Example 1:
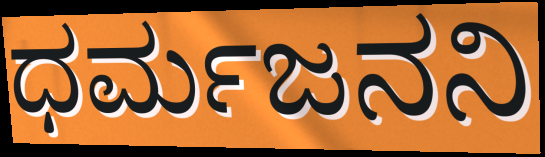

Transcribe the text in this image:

ಧರ್ಮಜನನಿ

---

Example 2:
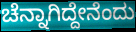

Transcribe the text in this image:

ಚೆನ್ನಾಗಿದ್ದೇನೆಂದು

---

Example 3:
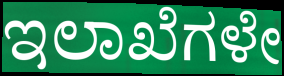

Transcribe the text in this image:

ಇಲಾಖೆಗಳೇ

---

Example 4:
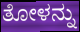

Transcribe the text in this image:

ತೋಳನ್ನು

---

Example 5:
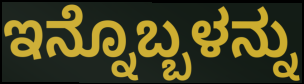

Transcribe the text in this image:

ಇನ್ನೊಬ್ಬಳನ್ನು